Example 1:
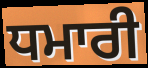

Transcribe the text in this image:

ਧਮਾਰੀ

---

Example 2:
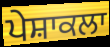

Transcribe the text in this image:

ਪੇਸ਼ਾਕਲਾ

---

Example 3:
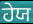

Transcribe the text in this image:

ਹੇਯ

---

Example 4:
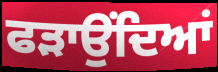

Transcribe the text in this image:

ਫੜਾਉਂਦਿਆਂ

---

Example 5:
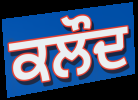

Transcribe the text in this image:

ਕਲੌਦ